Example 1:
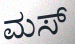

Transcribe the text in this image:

ಮಸ್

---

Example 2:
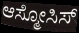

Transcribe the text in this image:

ಆಸ್ಮೋಸಿಸ್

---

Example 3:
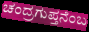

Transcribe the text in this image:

ಚಂದ್ರಗುಪ್ತನೆಂಬ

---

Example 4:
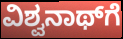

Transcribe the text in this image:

ವಿಶ್ವನಾಥ್‌ಗೆ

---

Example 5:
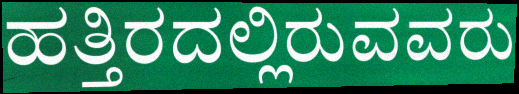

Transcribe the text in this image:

ಹತ್ತಿರದಲ್ಲಿರುವವರು